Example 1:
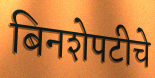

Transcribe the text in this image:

बिनशेपटीचे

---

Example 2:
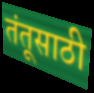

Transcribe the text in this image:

तंतूसाठी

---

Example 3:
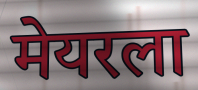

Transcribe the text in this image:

मेयरला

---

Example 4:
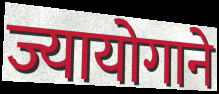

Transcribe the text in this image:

ज्यायोगाने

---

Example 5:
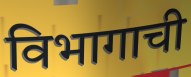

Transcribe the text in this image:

विभागाची